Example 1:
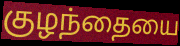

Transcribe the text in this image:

குழந்தையை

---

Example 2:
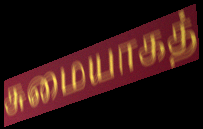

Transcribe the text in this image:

சுமையாகத்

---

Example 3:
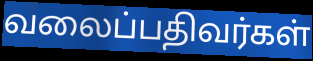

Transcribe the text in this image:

வலைப்பதிவர்கள்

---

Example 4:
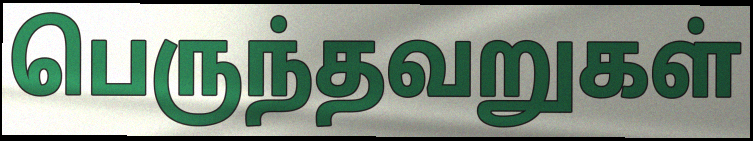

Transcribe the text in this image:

பெருந்தவறுகள்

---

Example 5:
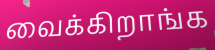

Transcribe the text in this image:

வைக்கிறாங்க